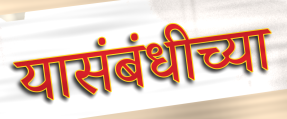
यासंबंधीच्या